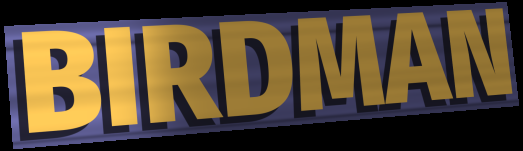
BIRDMAN